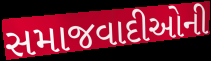
સમાજવાદીઓની